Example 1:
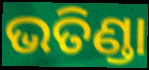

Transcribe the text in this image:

ଭତିଣ୍ଡା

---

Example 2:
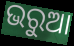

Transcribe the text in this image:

ଭରୁଆ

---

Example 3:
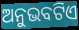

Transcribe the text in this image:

ଅନୁଭବଟିଏ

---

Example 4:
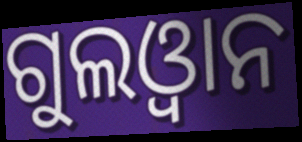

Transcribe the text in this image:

ଗୁଲଓ୍ୱାନ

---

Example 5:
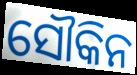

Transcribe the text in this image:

ସୌକିନ